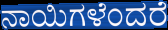
ನಾಯಿಗಳೆಂದರೆ